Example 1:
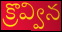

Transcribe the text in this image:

క్రొవ్విన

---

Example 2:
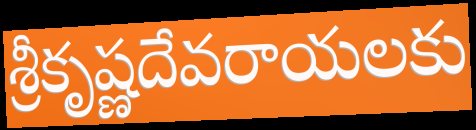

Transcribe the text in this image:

శ్రీకృష్ణదేవరాయలకు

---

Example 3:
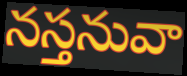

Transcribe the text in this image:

నస్తనువా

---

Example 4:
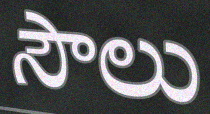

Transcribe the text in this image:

సౌలు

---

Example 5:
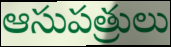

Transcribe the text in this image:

ఆసుపత్రులు